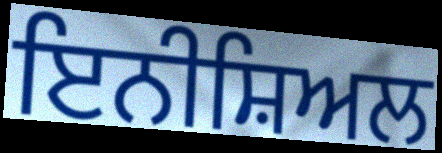
ਇਨੀਸ਼ਿਅਲ